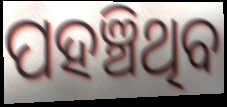
ପହଞ୍ଚିଥିବ